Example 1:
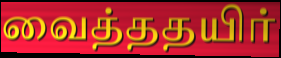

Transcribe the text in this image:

வைத்ததயிர்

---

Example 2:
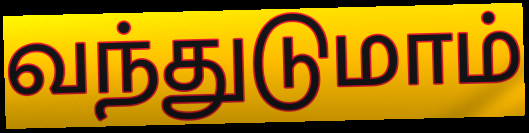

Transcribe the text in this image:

வந்துடுமாம்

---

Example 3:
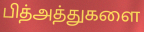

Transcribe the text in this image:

பித்அத்துகளை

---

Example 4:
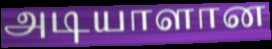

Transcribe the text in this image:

அடியாளான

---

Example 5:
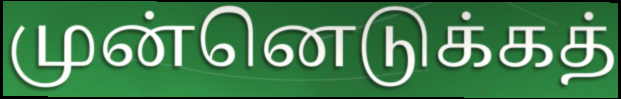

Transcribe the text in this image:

முன்னெடுக்கத்